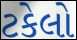
ટકેલો